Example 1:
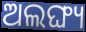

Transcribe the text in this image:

ଅଲଙ୍ଘ୍ୟ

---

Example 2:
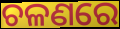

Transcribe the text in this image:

ଚଳଣରେ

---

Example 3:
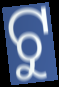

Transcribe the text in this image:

ଟୁ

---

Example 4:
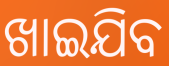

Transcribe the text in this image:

ଖାଇଯିବ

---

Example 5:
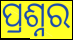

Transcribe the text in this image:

ପ୍ରଶ୍ନର